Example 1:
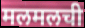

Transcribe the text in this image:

मलमलची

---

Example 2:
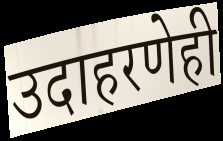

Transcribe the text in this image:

उदाहरणेही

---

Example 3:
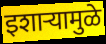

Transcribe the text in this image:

इशाऱ्यामुळे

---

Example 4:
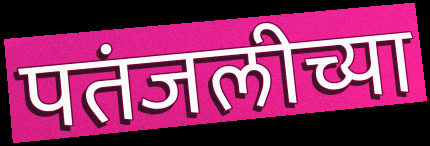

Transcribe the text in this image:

पतंजलीच्या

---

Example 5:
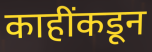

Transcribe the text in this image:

काहींकडून